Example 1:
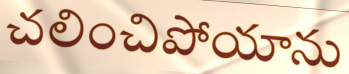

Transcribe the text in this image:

చలించిపోయాను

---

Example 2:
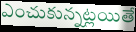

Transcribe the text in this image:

ఎంచుకున్నట్లయితే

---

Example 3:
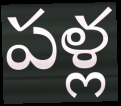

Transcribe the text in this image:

పళ్ల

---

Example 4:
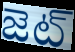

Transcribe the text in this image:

జెట్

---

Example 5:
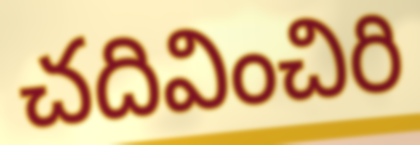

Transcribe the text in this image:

చదివించిరి